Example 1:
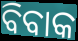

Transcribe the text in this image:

ବିବାକ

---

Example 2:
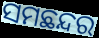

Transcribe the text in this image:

ସମଛନ୍ଦର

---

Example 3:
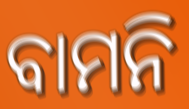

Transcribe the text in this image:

ବାମନି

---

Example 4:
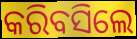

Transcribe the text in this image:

କରିବସିଲେ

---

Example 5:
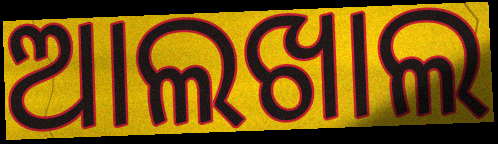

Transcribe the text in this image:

ଆଲଖାଲ